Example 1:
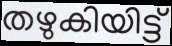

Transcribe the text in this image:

തഴുകിയിട്ട്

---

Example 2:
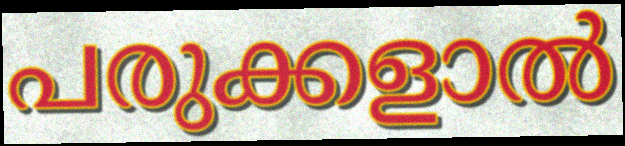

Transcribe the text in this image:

പരുക്കളാൽ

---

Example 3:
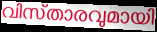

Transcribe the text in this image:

വിസ്‌താരവുമായി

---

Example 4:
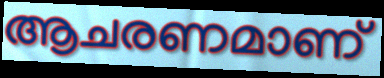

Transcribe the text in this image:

ആചരണമാണ്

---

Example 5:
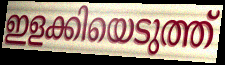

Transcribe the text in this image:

ഇളക്കിയെടുത്ത്